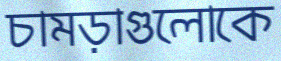
চামড়াগুলোকে